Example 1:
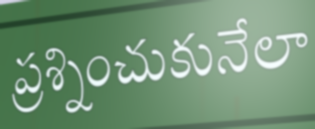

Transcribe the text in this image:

ప్రశ్నించుకునేలా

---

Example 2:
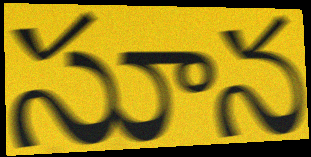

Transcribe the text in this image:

సూన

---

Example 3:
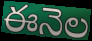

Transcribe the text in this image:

ఈనెల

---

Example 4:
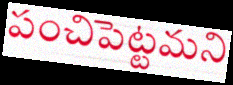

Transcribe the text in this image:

పంచిపెట్టమని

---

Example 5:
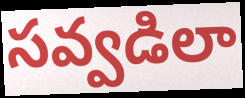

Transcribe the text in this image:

సవ్వడిలా